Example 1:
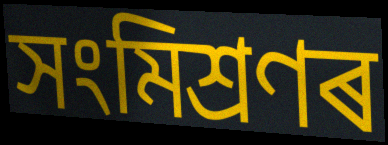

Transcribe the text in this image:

সংমিশ্ৰণৰ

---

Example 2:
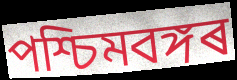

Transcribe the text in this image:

পশ্চিমবঙ্গৰ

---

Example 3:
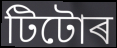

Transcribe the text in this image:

টিটোৰ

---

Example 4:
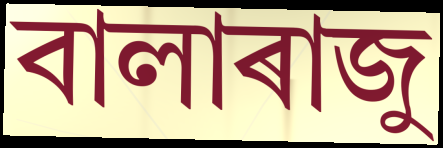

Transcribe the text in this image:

বালাৰাজু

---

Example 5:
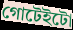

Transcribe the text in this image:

গোটেইটো